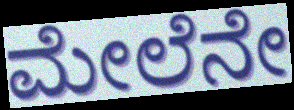
ಮೇಲೆನೇ